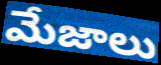
మేజాలు